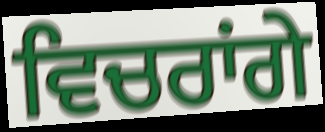
ਵਿਚਰਾਂਗੇ